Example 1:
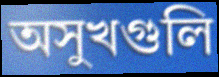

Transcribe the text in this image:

অসুখগুলি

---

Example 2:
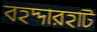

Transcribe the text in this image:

বহদ্দারহাট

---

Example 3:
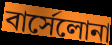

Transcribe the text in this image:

বার্সেলোনা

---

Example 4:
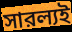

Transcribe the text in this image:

সারল্যই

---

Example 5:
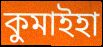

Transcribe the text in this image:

কুমাইহা